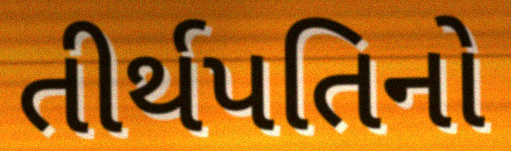
તીર્થપતિનો